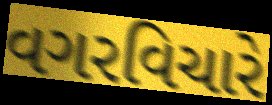
વગરવિચારે